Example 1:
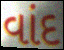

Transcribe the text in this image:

વાંદ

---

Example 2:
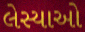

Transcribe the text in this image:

લેસ્યાઓ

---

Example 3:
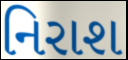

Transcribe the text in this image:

નિરાશ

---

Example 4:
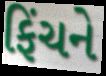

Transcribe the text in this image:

ફિંચને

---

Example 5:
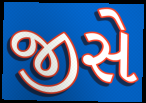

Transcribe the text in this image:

જીસે